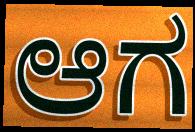
ಆಗ